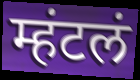
म्हंटलं